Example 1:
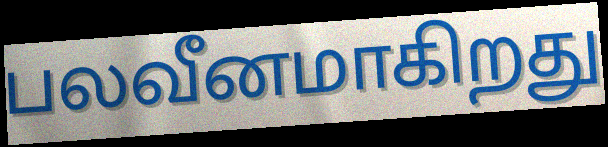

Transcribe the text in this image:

பலவீனமாகிறது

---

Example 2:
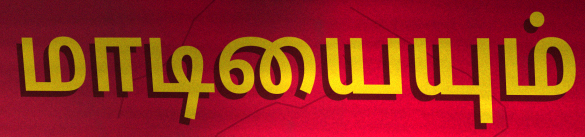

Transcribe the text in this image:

மாடியையும்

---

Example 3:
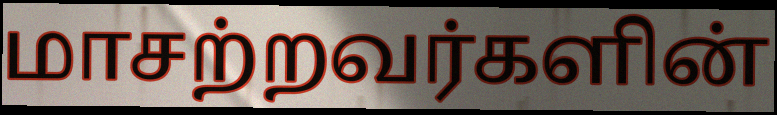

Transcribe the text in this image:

மாசற்றவர்களின்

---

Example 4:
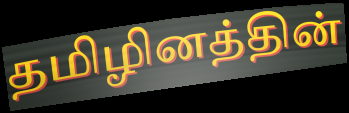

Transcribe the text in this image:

தமிழினத்தின்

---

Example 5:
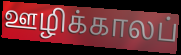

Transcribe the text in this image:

ஊழிக்காலப்